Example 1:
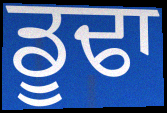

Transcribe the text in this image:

ਡੂਢਾ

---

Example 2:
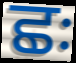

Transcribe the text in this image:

ਛਃ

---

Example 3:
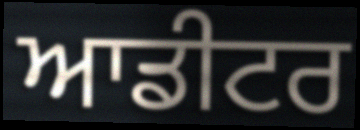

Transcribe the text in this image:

ਆਡੀਟਰ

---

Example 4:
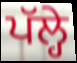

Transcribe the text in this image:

ਪੱਲ੍ਹੇ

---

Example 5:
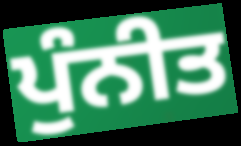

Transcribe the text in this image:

ਪੁੰਨੀਤ